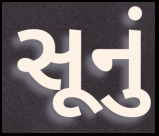
સૂનું